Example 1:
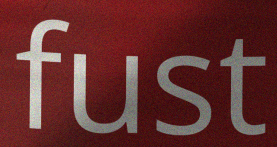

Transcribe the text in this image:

fust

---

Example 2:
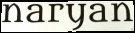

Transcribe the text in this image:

naryan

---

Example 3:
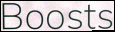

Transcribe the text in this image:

Boosts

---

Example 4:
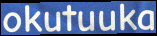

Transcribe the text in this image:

okutuuka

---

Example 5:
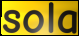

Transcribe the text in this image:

sola